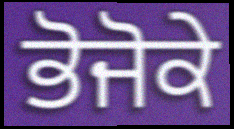
ਭੋਜੋਕੇ